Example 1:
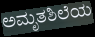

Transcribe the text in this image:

ಅಮೃತಶಿಲೆಯ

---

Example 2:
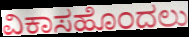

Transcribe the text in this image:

ವಿಕಾಸಹೊಂದಲು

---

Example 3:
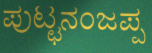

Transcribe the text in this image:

ಪುಟ್ಟನಂಜಪ್ಪ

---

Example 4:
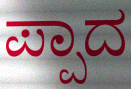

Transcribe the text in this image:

ಪ್ಪಾದ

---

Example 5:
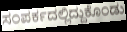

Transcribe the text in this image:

ಸಂಪರ್ಕದಲ್ಲಿದ್ದುಕೊಂಡು